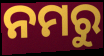
ନମରୁ